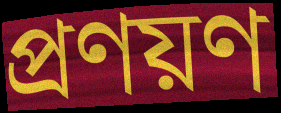
প্ৰণয়ণ